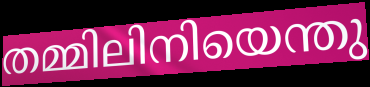
തമ്മിലിനിയെന്തു